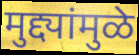
मुद्द्यांमुळे